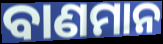
ବାଣମାନ